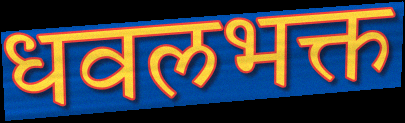
धवलभक्त